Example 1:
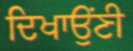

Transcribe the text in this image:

ਦਿਖਾਉਂਣੀ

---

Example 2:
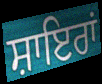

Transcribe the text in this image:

ਸ਼ਾਇਰਾਂ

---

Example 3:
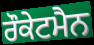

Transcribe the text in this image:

ਰੌਕੇਟਮੈਨ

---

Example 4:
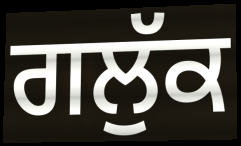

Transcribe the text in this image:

ਗਲੁੱਕ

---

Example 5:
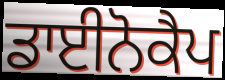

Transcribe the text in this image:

ਡਾਈਨੋਕੈਪ